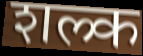
शल्क